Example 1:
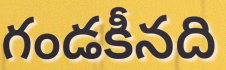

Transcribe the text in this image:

గండకీనది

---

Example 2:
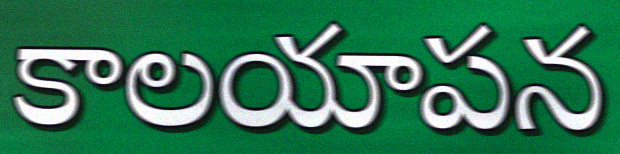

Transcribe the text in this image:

కాలయాపన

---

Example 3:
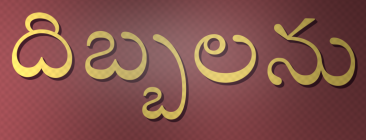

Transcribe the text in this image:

దిబ్బలను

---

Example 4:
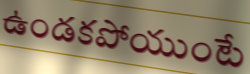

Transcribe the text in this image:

ఉండకపోయుంటే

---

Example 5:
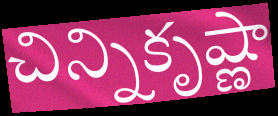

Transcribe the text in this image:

చిన్నికృష్ణా